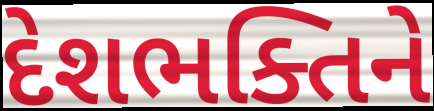
દેશભક્તિને